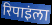
रिपाइंला